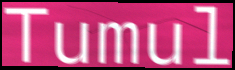
Tumul